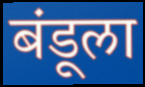
बंडूला